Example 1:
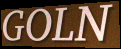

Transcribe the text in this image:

GOLN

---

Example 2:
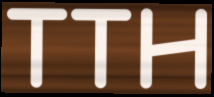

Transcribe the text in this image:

TTH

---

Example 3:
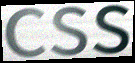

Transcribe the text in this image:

css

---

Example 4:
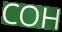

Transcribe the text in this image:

COH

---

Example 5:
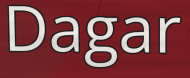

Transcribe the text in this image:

Dagar